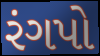
રંગપો